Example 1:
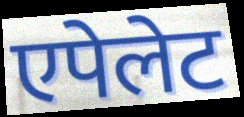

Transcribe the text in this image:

एपेलेट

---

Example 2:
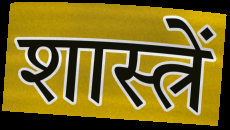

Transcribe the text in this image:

शास्त्रें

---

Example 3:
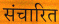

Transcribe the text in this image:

संचारित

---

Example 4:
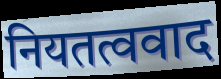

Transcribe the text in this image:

नियतत्ववाद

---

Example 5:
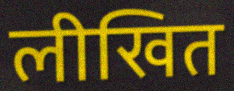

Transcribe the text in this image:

लीखित